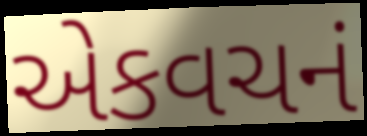
એકવચનં